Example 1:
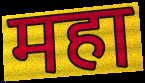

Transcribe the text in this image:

महा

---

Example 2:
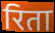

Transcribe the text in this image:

रिता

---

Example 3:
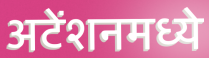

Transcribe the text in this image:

अटेंशनमध्ये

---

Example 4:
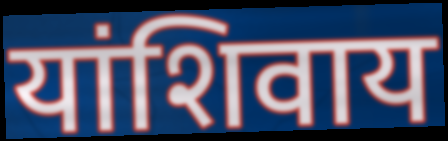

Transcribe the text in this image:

यांशिवाय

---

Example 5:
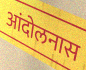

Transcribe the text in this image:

आंदोलनास